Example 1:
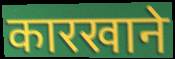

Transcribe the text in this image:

कारखाने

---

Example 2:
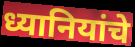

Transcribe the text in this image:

ध्यानियांचे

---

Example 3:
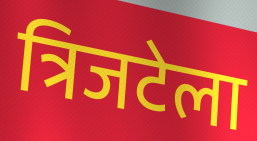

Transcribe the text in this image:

त्रिजटेला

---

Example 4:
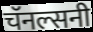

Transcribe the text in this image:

चॅनल्सनी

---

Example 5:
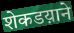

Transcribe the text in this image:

शेकडय़ाने